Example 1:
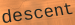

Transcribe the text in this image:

descent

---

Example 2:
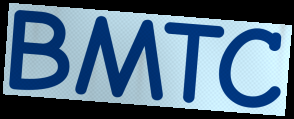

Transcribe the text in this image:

BMTC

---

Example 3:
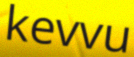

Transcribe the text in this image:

kevvu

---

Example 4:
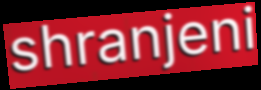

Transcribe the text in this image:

shranjeni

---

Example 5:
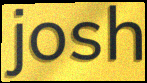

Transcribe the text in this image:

josh